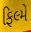
ફિલ્મે